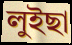
লুইছা